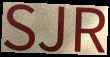
SJR